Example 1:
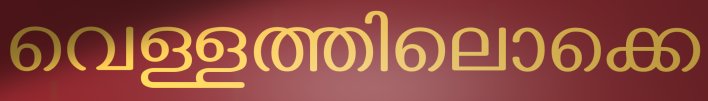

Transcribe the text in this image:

വെള്ളത്തിലൊക്കെ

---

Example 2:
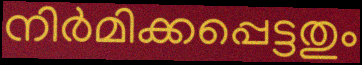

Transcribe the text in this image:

നിർമിക്കപ്പെട്ടതും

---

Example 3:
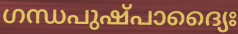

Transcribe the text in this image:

ഗന്ധപുഷ്പാദ്യൈഃ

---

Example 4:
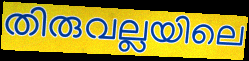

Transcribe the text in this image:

തിരുവല്ലയിലെ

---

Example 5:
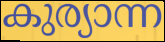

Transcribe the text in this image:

കുര്യാന്ന